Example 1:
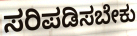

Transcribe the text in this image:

ಸರಿಪಡಿಸಬೇಕು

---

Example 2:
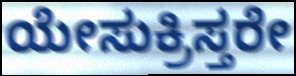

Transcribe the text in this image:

ಯೇಸುಕ್ರಿಸ್ತರೇ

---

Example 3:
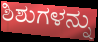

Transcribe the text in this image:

ಶಿಶುಗಳನ್ನು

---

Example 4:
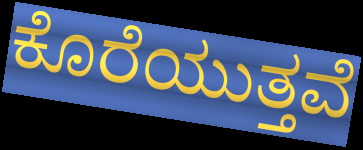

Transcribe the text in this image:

ಕೊರೆಯುತ್ತವೆ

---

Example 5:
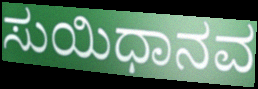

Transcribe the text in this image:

ಸುಯಿಧಾನವ